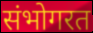
संभोगरत